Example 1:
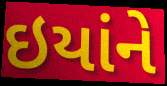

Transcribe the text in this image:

ઇયાંને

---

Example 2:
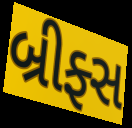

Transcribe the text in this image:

બ્રીફ્સ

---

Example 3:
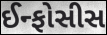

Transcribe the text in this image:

ઈન્ફોસીસ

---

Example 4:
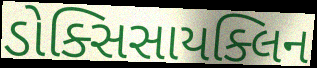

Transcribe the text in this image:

ડોક્સિસાયક્લિન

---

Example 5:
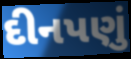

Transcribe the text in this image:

દીનપણું